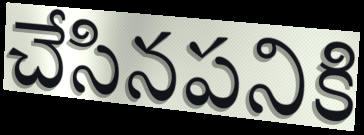
చేసినపనికి